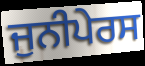
ਜੁਨੀਪੇਰਸ